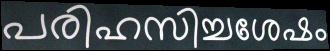
പരിഹസിച്ചശേഷം